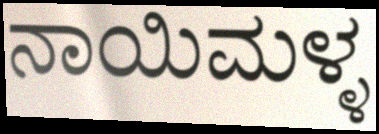
ನಾಯಿಮಳ್ಳ